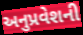
અનુપ્રવેશની